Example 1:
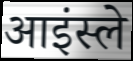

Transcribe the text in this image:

आइंस्ले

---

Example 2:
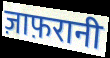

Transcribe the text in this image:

ज़ाफ़रानी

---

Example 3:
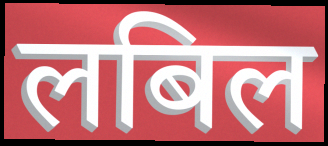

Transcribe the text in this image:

लबिल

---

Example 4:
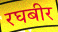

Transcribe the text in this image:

रघबीर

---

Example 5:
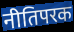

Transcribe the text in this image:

नीतिपरक